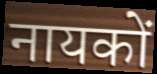
नायकों